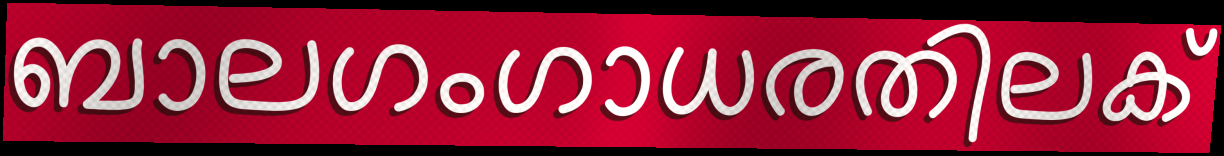
ബാലഗംഗാധരതിലക്